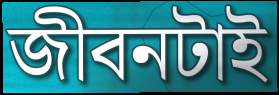
জীবনটাই